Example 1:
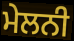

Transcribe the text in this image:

ਮੇਲਨੀ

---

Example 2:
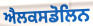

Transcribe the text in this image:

ਐਲਕਸਡੋਲਿਨ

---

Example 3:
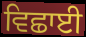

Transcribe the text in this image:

ਵਿਛਾਈ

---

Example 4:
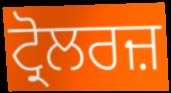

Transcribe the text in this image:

ਟ੍ਰੋਲਰਜ਼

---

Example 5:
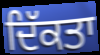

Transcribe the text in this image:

ਦਿੱਕਤਾ